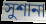
সুশানা